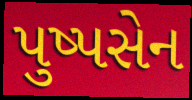
પુષ્પસેન